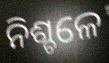
ନିଶ୍ଚଳେ